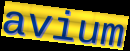
avium